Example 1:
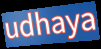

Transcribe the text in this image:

udhaya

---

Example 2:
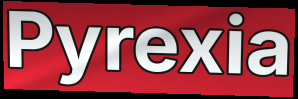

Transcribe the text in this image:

Pyrexia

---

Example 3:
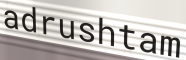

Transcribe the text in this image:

adrushtam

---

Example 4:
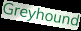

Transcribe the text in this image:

Greyhound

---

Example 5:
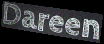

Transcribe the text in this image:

Dareen